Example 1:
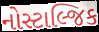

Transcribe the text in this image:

નોસ્ટાલ્જિક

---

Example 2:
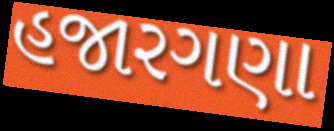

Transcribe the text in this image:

હજારગણા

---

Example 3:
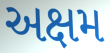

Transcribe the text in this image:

અક્ષમ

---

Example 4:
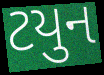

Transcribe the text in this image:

ટયુન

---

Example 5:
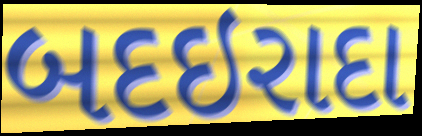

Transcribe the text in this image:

બદઇરાદા